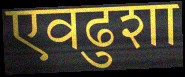
एवढुशा